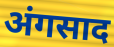
अंगसाद